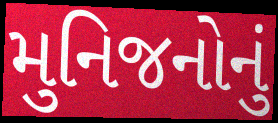
મુનિજનોનું